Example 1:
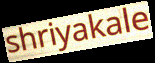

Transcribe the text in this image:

shriyakale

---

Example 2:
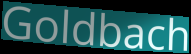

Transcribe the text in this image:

Goldbach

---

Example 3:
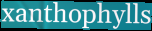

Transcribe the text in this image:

xanthophylls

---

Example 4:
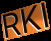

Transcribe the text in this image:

RKI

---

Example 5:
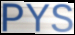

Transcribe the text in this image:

PYS